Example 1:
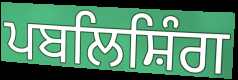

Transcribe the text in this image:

ਪਬਲਿਸ਼ਿੰਗ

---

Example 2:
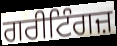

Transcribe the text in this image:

ਗਰੀਟਿੰਗਜ਼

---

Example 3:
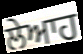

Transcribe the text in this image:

ਲੇਆਹ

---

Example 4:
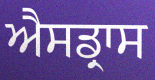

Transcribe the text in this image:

ਐਸਡ੍ਰਾਸ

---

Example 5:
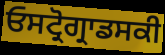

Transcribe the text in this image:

ਓਸਟ੍ਰੋਗ੍ਰਾਡਸਕੀ